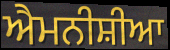
ਐਮਨੀਸ਼ੀਆ